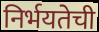
निर्भयतेची